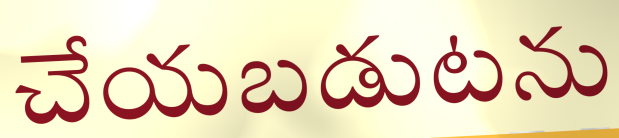
చేయబడుటను